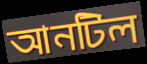
আনটিল